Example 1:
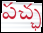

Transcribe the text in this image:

పచ్ఛ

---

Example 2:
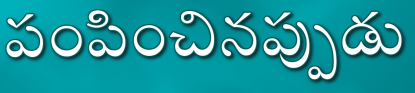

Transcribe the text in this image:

పంపించినప్పుడు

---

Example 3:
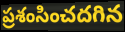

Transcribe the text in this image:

ప్రశంసించదగిన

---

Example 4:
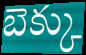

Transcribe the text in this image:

బెక్కు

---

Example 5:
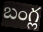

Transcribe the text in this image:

బంగ్ల